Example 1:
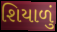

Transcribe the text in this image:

શિયાળું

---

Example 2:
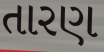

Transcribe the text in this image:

તારણ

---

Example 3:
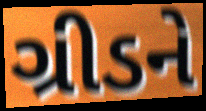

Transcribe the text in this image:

ગ્રીડને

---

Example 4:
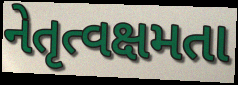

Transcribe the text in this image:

નેતૃત્વક્ષમતા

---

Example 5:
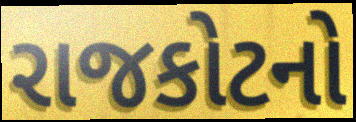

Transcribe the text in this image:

રાજકોટનો